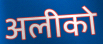
अलीको